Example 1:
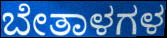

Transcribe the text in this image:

ಬೇತಾಳಗಳ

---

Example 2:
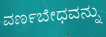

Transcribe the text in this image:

ವರ್ಣಬೇಧವನ್ನು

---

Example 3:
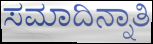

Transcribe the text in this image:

ಸಮಾದಿನ್ನಾತಿ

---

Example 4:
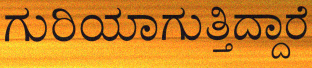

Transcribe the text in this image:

ಗುರಿಯಾಗುತ್ತಿದ್ದಾರೆ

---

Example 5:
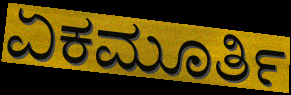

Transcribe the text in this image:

ಏಕಮೂರ್ತಿ